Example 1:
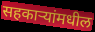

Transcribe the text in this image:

सहकाऱ्यांमधील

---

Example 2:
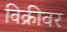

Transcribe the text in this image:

विक्रीवर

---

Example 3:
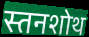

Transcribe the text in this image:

स्तनशोथ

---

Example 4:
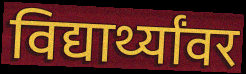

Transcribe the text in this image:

विद्यार्थ्यांवर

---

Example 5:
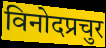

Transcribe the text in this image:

विनोदप्रचुर